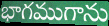
భాగముగాను